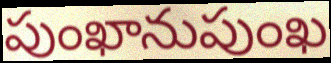
పుంఖానుపుంఖ